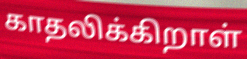
காதலிக்கிறாள்